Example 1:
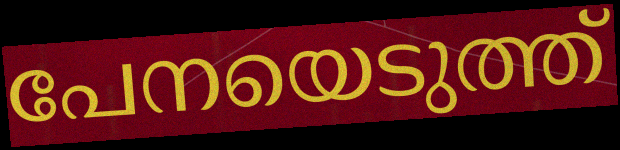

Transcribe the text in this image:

പേനയെടുത്ത്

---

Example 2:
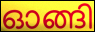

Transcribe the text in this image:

ഓങ്ങി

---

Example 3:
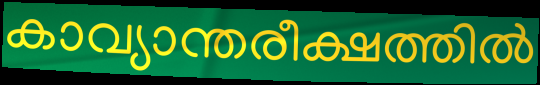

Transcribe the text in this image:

കാവ്യാന്തരീക്ഷത്തിൽ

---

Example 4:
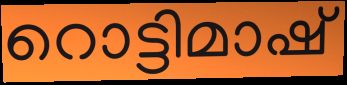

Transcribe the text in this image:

റൊട്ടിമാഷ്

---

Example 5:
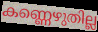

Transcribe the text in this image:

കണ്ണെഴുതില്ല